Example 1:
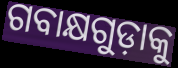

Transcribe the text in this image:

ଗବାକ୍ଷଗୁଡ଼ାକୁ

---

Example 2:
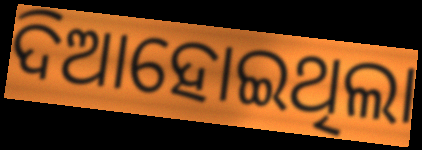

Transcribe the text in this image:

ଦିଆହୋଇଥିଲା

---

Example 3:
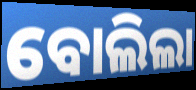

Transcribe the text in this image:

ବୋଲିଲା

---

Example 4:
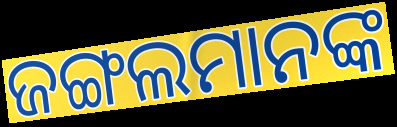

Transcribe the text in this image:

ଜଙ୍ଗଲମାନଙ୍କ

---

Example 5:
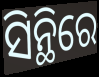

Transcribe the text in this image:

ସିନ୍ଥିରେ